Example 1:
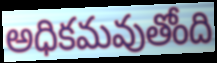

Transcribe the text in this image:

అధికమవుతోంది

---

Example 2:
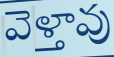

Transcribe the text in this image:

వెళ్తావు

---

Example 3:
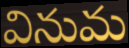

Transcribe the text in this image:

వినుమ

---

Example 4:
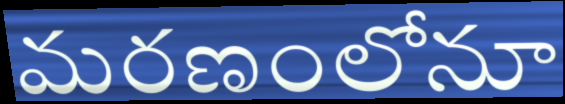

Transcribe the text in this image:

మరణంలోనూ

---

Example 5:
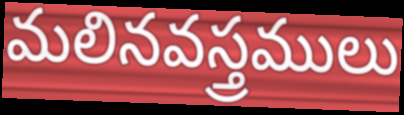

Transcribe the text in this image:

మలినవస్త్రములు